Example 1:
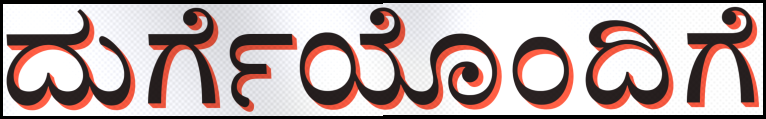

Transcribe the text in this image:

ದುರ್ಗೆಯೊಂದಿಗೆ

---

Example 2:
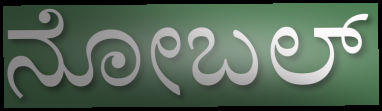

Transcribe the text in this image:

ನೋಬಲ್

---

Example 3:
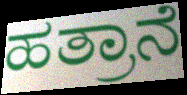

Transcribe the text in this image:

ಹತ್ರಾನೆ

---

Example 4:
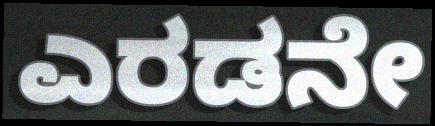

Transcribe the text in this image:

ಎರಡನೇ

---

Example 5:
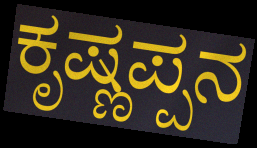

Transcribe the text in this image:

ಕೃಷ್ಣಪ್ಪನ